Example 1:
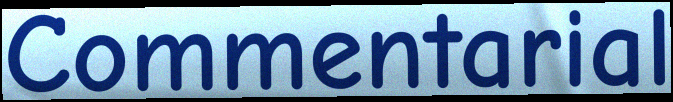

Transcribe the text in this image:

Commentarial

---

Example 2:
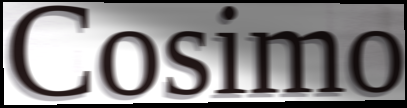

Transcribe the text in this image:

Cosimo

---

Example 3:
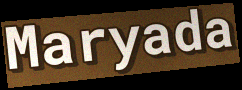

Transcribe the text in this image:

Maryada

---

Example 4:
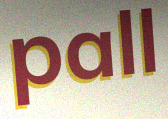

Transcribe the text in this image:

pall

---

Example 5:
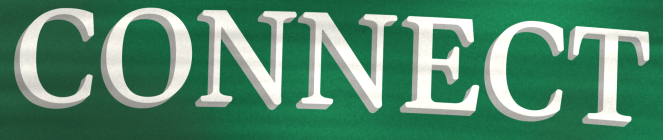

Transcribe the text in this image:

CONNECT